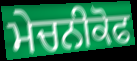
ਮੇਚਨੀਕੋਫ